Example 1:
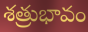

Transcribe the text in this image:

శత్రుభావం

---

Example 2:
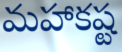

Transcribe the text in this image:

మహాకష్ట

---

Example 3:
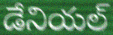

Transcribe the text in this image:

డేనియల్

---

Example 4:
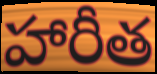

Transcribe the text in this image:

హారీత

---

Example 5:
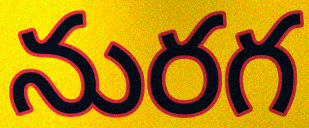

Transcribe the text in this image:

నురగ